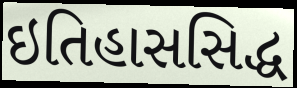
ઇતિહાસસિદ્ધ